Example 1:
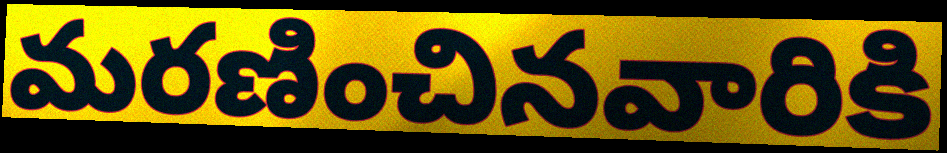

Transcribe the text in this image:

మరణించినవారికి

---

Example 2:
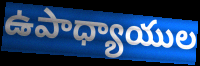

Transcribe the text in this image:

ఉపాధ్యాయుల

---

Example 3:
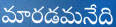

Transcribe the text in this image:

మారడమనేది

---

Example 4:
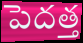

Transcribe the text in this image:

పెదత్త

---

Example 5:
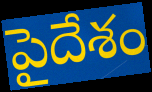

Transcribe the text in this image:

పైదేశం